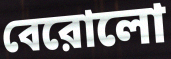
বেরোলো